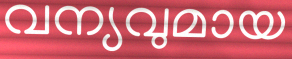
വന്യവുമായ